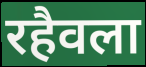
रहैवला